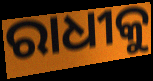
ରାଧୀକୁ